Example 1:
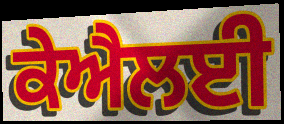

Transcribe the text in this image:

ਕੇਐਲਈ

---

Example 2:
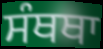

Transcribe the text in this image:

ਸੰਥਥਾ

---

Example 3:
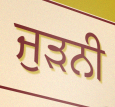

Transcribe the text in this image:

ਜੁੜਨੀ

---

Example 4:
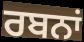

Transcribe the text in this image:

ਰਬਨਾਂ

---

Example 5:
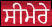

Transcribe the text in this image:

ਸੀਮੇਰੇ